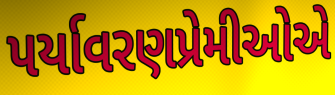
પર્યાવરણપ્રેમીઓએ